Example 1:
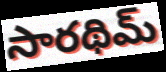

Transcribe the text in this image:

సారథిమ్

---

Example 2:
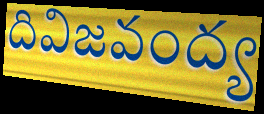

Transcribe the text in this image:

దివిజవంద్య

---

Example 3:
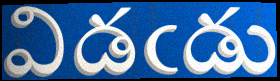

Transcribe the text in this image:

విడఁడు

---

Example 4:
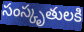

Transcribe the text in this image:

సంస్కృతులకి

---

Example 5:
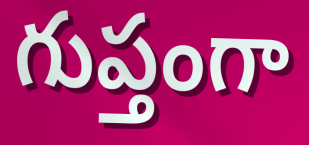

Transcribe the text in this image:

గుప్తంగా